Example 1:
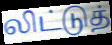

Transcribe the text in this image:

லிட்டுத்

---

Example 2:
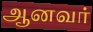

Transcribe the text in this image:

ஆனவர்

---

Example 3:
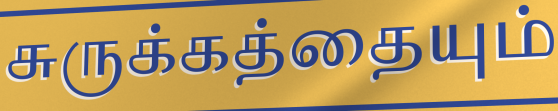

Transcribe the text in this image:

சுருக்கத்தையும்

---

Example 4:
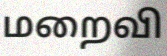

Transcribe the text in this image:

மறைவி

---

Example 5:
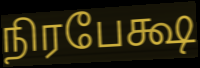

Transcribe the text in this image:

நிரபேக்ஷ